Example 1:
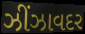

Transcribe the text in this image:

ઝીંઝાવદર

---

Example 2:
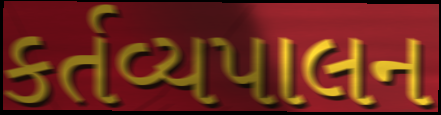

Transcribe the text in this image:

કર્તવ્યપાલન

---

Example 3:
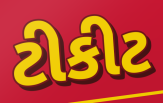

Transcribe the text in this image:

ટીકીટ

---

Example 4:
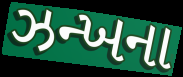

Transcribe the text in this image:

ઝન્ખના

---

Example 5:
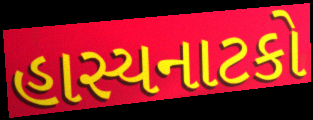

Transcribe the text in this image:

હાસ્યનાટકો